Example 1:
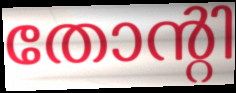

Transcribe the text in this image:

തോന്റി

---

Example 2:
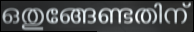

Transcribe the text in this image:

ഒതുങ്ങേണ്ടതിന്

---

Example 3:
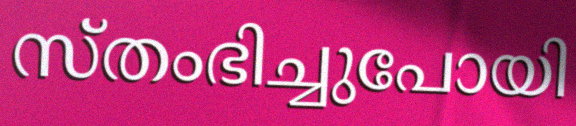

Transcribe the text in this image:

സ്തംഭിച്ചുപോയി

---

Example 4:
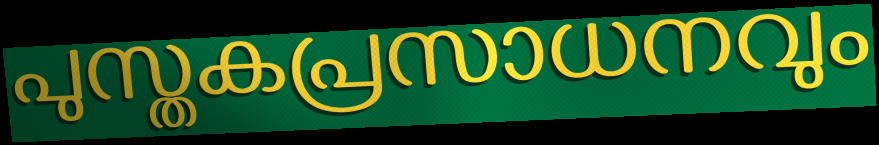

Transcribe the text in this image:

പുസ്തകപ്രസാധനവും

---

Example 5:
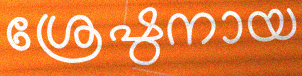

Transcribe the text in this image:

ശ്രേഷ്ഠനായ